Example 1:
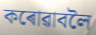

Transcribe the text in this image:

কৰোৱাবলৈ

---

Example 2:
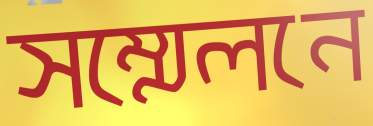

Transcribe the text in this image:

সম্মেলনে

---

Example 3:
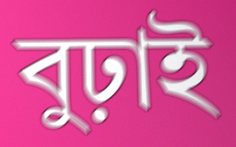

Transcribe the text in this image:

বুঢ়াই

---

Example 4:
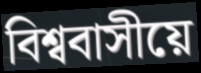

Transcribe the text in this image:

বিশ্ববাসীয়ে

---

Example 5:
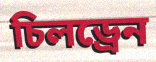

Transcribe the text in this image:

চিলড্ৰেন